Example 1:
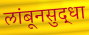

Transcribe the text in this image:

लांबूनसुद्धा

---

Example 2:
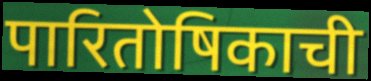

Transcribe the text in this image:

पारितोषिकाची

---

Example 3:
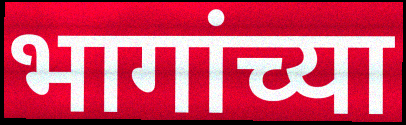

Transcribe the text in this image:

भागांच्या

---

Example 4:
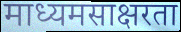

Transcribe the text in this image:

माध्यमसाक्षरता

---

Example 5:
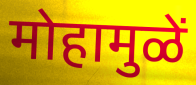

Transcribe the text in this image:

मोहामुळें